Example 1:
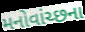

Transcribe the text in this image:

મનોવાંચ્છના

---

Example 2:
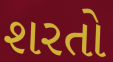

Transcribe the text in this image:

શરતો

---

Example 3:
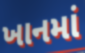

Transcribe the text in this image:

ખાનમાં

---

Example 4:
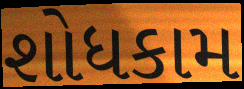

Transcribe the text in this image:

શોધકામ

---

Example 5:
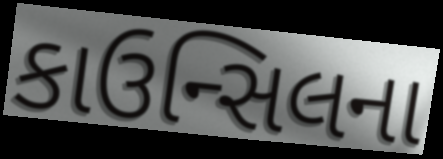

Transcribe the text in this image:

કાઉન્સિલના